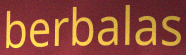
berbalas